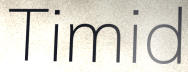
Timid